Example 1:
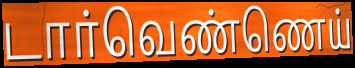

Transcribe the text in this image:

டார்வெண்ணெய்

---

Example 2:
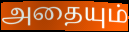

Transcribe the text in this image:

அதையும்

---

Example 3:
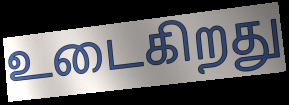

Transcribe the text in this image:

உடைகிறது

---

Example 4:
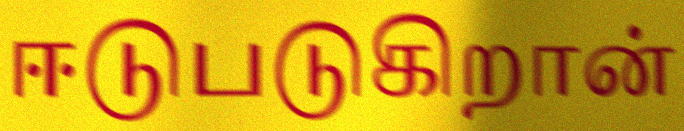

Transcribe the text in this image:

ஈடுபடுகிறான்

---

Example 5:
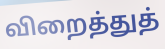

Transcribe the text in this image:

விறைத்துத்